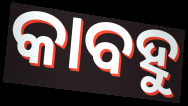
କାବହୁ